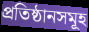
প্ৰতিষ্ঠানসমূহ